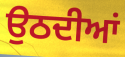
ਉਠਦੀਆਂ